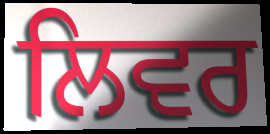
ਲਿਵਰ